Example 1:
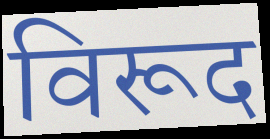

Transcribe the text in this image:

विरूद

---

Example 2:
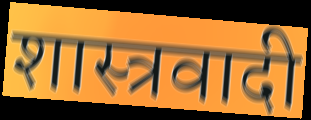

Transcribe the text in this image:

शास्त्रवादी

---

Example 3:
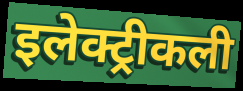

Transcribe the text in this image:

इलेक्ट्रीकली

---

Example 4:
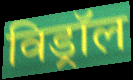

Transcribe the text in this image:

विड्रॉल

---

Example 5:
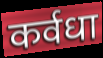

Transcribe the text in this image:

कर्वधा